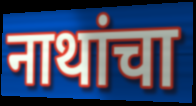
नाथांचा